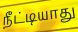
நீட்டியாது